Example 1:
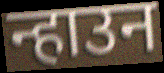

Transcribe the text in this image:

न्हाउन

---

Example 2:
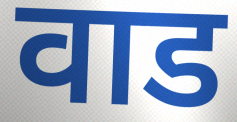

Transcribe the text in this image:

वाड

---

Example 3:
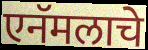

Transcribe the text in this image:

एनॅमलाचे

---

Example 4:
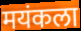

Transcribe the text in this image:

मयंकला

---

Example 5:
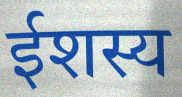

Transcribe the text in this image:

ईशस्य